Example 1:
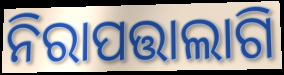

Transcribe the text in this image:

ନିରାପତ୍ତାଲାଗି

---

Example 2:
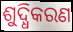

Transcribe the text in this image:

ଶୁଦ୍ଧିକରଣ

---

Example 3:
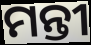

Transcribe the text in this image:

ମନ୍ତୀ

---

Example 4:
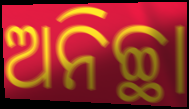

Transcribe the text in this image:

ଅନିଚ୍ଛା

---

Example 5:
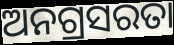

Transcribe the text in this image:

ଅନଗ୍ରସରତା